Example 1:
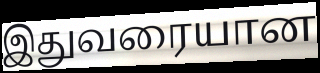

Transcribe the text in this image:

இதுவரையான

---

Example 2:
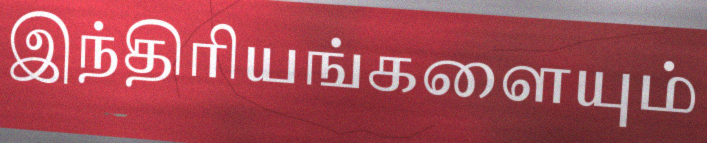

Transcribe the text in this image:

இந்திரியங்களையும்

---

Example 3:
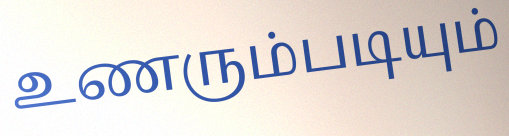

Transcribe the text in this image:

உணரும்படியும்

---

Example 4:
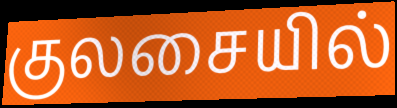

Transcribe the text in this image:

குலசையில்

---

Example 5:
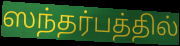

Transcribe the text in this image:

ஸந்தர்பத்தில்